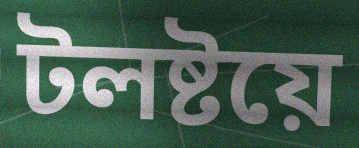
টলষ্টয়ে